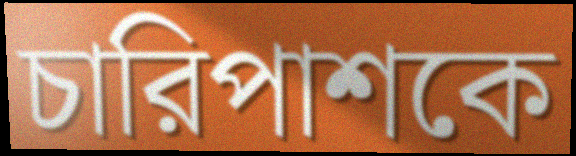
চারিপাশকে